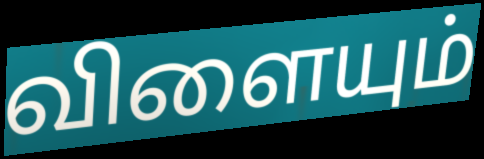
விளையும்